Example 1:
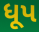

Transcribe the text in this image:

ધૂપ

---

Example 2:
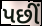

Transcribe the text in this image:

પછીં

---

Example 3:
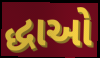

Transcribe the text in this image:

દ્ધાઓ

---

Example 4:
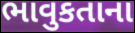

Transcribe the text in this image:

ભાવુકતાના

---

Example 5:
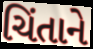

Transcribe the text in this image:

ચિંતાને